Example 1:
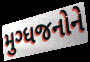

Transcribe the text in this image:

મુગ્ધજનોને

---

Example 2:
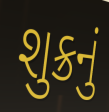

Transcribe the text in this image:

શુક્રનું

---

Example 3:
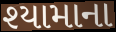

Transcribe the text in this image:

શ્યામાના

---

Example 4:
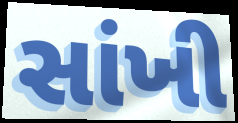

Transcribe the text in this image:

સાંખી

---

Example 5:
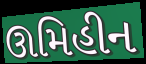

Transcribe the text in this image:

ઊમિહીન